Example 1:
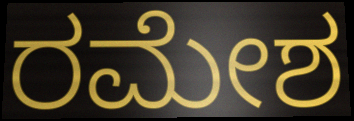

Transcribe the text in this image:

ರಮೇಶ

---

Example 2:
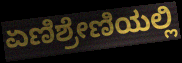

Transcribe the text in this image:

ಏಣಿಶ್ರೇಣಿಯಲ್ಲಿ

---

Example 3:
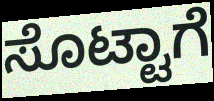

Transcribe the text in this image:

ಸೊಟ್ಟಾಗೆ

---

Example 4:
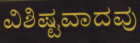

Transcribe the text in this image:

ವಿಶಿಷ್ಟವಾದವು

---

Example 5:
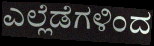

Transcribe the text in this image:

ಎಲ್ಲೆಡೆಗಳಿಂದ